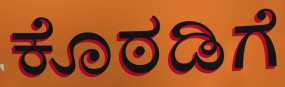
ಕೊಠಡಿಗೆ